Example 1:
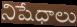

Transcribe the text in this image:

నిషేధాలు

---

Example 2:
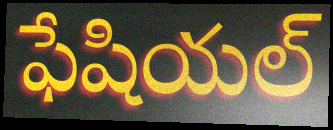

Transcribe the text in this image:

ఫేషియల్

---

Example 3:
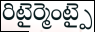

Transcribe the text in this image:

రిటైర్మెంట్పై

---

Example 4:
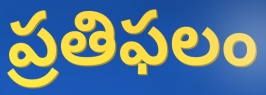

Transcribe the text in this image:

ప్రతిఫలం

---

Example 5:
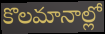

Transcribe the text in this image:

కొలమానాల్లో